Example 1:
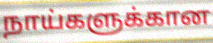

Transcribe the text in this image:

நாய்களுக்கான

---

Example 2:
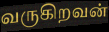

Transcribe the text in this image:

வருகிறவன்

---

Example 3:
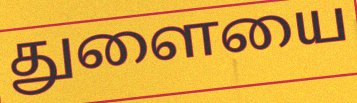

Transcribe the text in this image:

துளையை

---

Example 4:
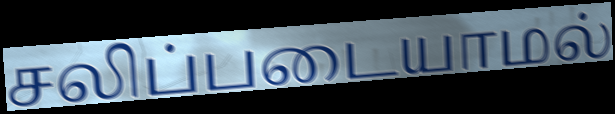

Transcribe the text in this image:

சலிப்படையாமல்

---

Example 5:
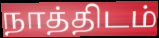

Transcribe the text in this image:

நாத்திடம்